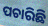
ପଚାରିଛି